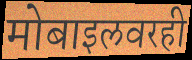
मोबाइलवरही